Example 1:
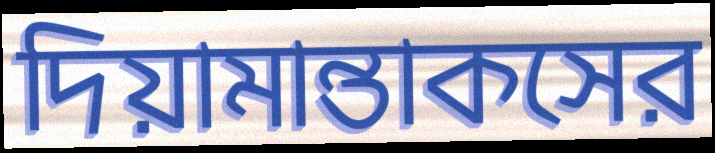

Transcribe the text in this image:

দিয়ামান্তাকসের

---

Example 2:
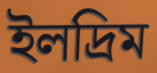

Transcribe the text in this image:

ইলদ্রিম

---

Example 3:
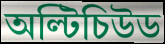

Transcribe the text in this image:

অল্টিচিউড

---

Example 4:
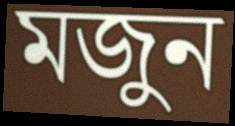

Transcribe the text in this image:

মজুন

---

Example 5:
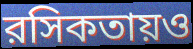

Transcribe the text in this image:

রসিকতায়ও